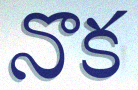
నొక